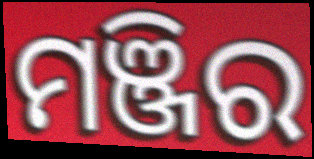
ମଞ୍ଜିର